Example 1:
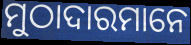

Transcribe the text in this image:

ମୁଠାଦାରମାନେ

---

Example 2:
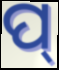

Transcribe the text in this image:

ପ୍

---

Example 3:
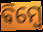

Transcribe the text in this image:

ବିମ୍ବେ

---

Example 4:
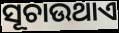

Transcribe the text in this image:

ସୂଚାଉଥାଏ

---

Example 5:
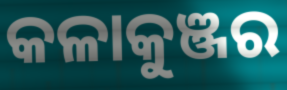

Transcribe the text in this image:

କଳାକୁଞ୍ଜର